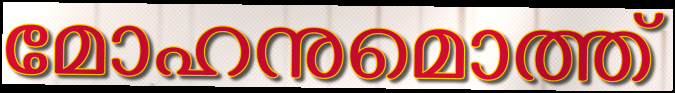
മോഹനുമൊത്ത്